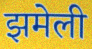
झमेली